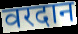
वरदान